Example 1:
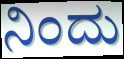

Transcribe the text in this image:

ನಿಂದು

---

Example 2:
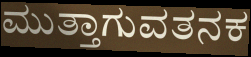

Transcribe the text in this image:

ಮುತ್ತಾಗುವತನಕ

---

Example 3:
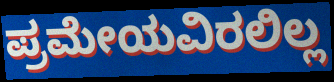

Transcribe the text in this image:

ಪ್ರಮೇಯವಿರಲಿಲ್ಲ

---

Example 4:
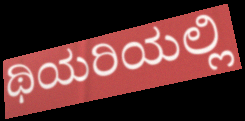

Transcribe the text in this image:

ಥಿಯರಿಯಲ್ಲಿ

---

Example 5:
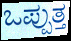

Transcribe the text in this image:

ಒಪ್ಪುತ್ತ